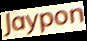
Jaypon